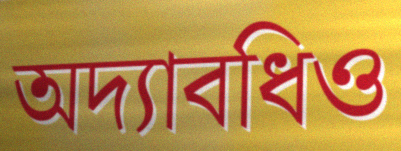
অদ্যাবধিও